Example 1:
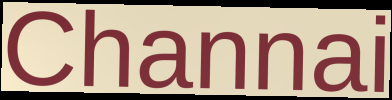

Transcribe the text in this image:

Channai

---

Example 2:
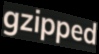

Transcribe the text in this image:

gzipped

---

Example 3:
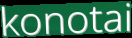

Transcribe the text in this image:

konotai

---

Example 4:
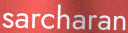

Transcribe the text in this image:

sarcharan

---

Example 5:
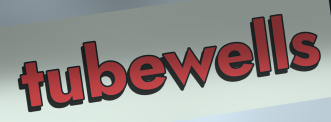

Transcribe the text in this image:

tubewells